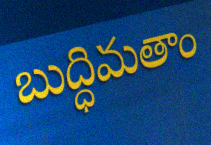
బుద్ధిమతాం